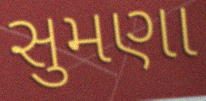
સુમણા